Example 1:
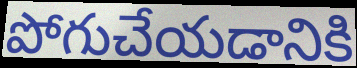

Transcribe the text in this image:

పోగుచేయడానికి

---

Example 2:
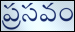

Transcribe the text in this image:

ప్రసవం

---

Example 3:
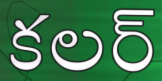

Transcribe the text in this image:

కలర్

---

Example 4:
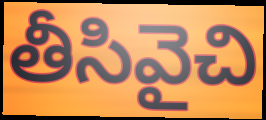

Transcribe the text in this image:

తీసివైచి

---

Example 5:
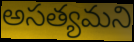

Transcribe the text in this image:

అసత్యమని